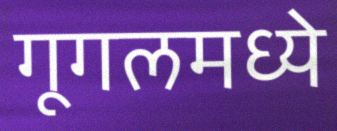
गूगलमध्ये